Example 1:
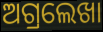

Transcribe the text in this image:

ଅଗ୍ରଲେଖା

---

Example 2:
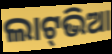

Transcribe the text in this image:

ଲାଟ୍‍ଭିଆ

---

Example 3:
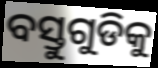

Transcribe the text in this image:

ବସ୍ତୁଗୁଡିକୁ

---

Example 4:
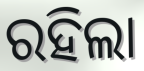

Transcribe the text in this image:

ରହିଲା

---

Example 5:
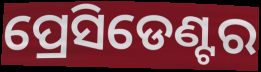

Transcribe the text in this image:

ପ୍ରେସିଡେଣ୍ଟର